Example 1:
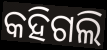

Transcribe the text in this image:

କହିଗଲି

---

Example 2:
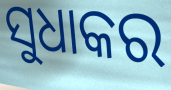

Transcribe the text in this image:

ସୁଧାକର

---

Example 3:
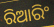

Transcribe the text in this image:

ରିଆରିଂ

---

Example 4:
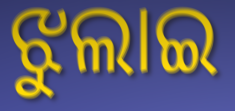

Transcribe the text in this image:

ଝୁଲାଇ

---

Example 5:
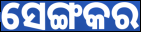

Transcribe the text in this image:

ସେଙ୍ଗକର